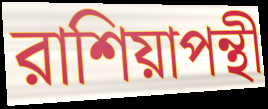
রাশিয়াপন্থী